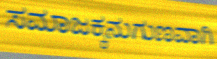
ಸಮಾಜಕ್ಕನುಗುಣವಾಗಿ